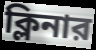
ক্লিনার